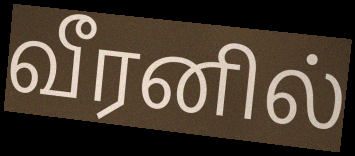
வீரனில்